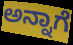
ಅನ್ನಾಗೆ